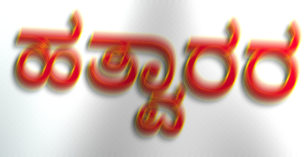
ಹತ್ವಾರರ